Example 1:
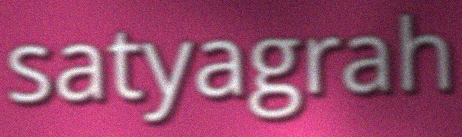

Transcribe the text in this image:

satyagrah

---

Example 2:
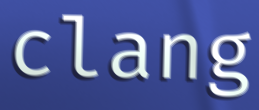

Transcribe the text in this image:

clang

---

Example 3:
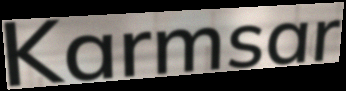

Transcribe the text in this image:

Karmsar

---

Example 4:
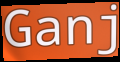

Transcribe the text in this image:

Ganj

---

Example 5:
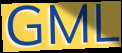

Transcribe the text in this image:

GML